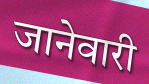
जानेवारी